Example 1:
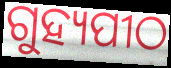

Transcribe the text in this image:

ଗୁହ୍ୟପୀଠ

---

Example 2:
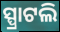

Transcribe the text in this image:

ସ୍ପ୍ରାଟଲି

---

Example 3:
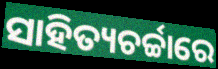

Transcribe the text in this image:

ସାହିତ୍ୟଚର୍ଚ୍ଚାରେ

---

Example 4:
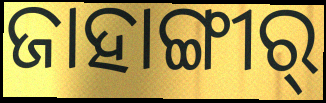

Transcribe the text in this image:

ଜାହାଙ୍ଗୀର୍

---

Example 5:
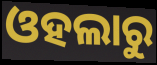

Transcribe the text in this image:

ଓହଲାରୁ